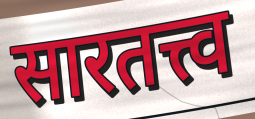
सारतत्त्व